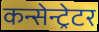
कन्सेन्ट्रेटर